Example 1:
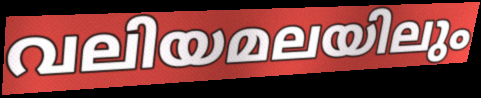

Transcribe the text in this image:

വലിയമലയിലും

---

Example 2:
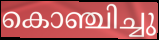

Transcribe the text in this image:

കൊഞ്ചിച്ചു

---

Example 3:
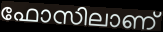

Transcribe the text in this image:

ഫോസിലാണ്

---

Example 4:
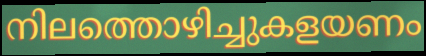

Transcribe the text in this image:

നിലത്തൊഴിച്ചുകളയണം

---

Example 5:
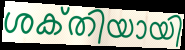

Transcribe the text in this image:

ശക്‌തിയായി